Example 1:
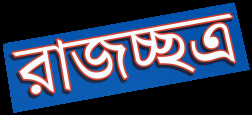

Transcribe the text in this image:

রাজচ্ছত্র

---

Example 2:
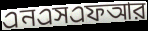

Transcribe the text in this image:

এনএসএফআর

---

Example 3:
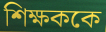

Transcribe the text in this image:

শিক্ষককে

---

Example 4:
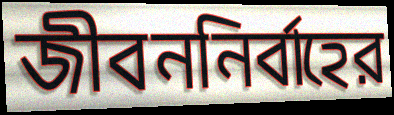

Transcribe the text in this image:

জীবননির্বাহের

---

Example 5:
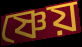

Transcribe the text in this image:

ষ্ণেয়